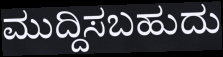
ಮುದ್ದಿಸಬಹುದು